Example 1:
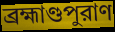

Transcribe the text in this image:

ব্রহ্মাণ্ডপুরাণ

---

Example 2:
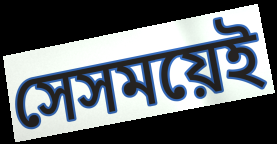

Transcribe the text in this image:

সেসময়েই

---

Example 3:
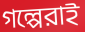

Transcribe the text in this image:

গল্পেরাই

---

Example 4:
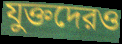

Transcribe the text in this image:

যুক্তদেরও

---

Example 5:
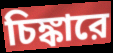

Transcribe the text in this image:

চিঙ্কারে